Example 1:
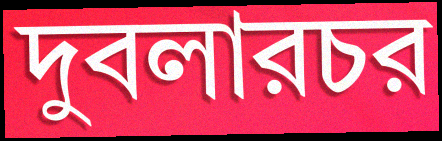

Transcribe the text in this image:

দুবলারচর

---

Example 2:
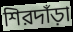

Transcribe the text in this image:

শিরদাঁড়া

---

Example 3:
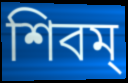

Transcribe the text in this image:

শিবম্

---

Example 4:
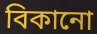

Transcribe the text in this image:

বিকানো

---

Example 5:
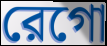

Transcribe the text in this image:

রেগো